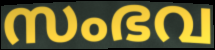
സംഭവ